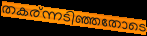
തകര്ന്നടിഞ്ഞതോടെ